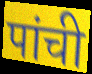
पांची